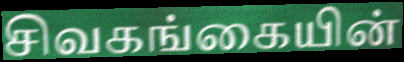
சிவகங்கையின்